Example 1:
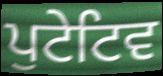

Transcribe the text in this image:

ਪੁਟੇਟਿਵ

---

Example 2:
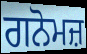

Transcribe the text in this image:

ਗਨੋਮਜ਼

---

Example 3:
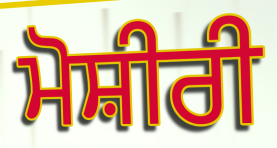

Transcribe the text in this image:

ਮੋਸ਼ੀਰੀ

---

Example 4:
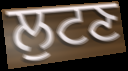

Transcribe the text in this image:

ਲੁਟਣ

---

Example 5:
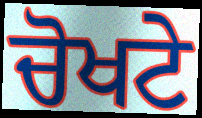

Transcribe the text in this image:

ਚੋਖਟੇ